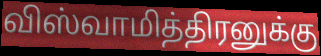
விஸ்வாமித்திரனுக்கு